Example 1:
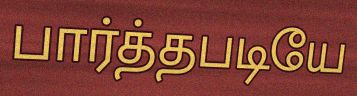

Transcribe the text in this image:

பார்த்தபடியே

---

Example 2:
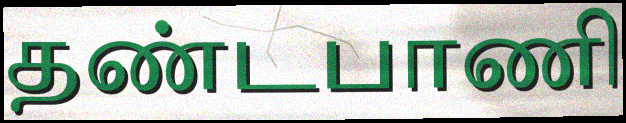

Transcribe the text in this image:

தண்டபாணி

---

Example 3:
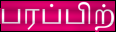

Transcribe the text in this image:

பரப்பிற்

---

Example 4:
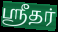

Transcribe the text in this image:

ஸ்ரீதர்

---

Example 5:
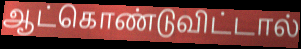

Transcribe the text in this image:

ஆட்கொண்டுவிட்டால்